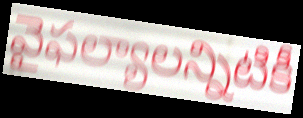
వైఫల్యాలన్నిటికీ